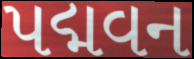
પદ્મવન